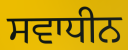
ਸਵਾਧੀਨ